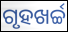
ଗୃହଖର୍ଚ୍ଚ